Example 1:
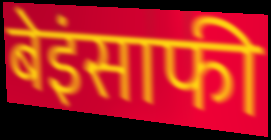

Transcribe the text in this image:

बेइंसाफी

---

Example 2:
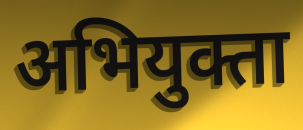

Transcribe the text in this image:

अभियुक्ता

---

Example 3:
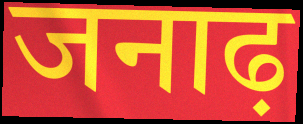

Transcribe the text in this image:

जनाढ़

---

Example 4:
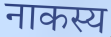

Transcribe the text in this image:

नाकस्य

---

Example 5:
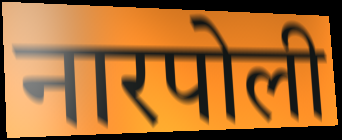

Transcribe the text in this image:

नारपोली